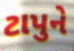
ટાપુને